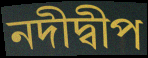
নদীদ্বীপ